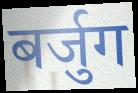
बर्जुग